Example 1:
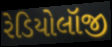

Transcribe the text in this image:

રેડિયોલૉજી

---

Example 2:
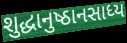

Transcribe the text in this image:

શુદ્ધાનુષ્ઠાનસાધ્ય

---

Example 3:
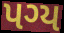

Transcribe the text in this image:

પગ્ય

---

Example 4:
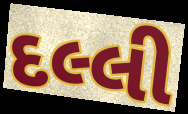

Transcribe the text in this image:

દલ્લી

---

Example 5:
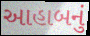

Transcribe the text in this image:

આહાબનું